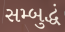
સમ્બુદ્ધં